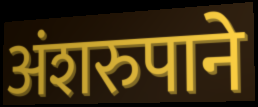
अंशरुपाने